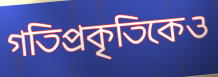
গতিপ্রকৃতিকেও